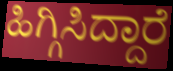
ಹಿಗ್ಗಿಸಿದ್ದಾರೆ